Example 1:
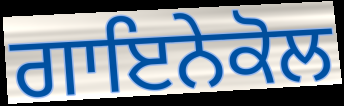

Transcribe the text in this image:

ਗਾਇਨੇਕੋਲ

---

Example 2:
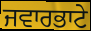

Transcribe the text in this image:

ਜਵਾਰਭਾਟੇ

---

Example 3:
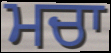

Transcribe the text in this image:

ਮਚਾ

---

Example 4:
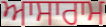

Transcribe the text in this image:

ਆਸਾਰਾਮ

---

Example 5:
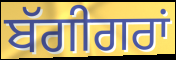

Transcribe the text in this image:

ਬੱਗੀਗਰਾਂ